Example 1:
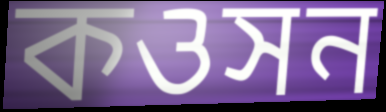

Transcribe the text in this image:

কওসন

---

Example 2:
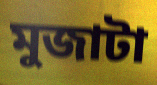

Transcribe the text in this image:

মুজাটা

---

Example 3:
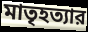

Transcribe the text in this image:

মাতৃহত্যার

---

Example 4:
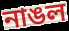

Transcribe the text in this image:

নাঙল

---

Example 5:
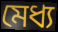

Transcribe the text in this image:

মেধ্য